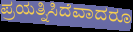
ಪ್ರಯತ್ನಿಸಿದೆವಾದರೂ